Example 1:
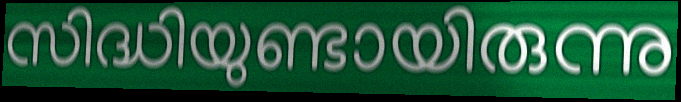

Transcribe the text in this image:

സിദ്ധിയുണ്ടായിരുന്നു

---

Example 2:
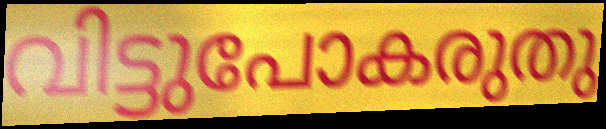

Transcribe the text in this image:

വിട്ടുപോകരുതു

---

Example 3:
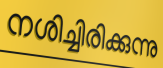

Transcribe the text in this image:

നശിച്ചിരിക്കുന്നു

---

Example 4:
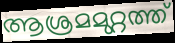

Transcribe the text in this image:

ആശ്രമമുറ്റത്ത്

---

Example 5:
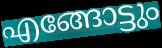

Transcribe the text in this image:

എങ്ങോട്ടും